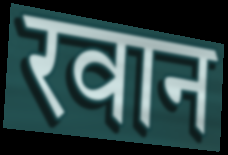
रवान